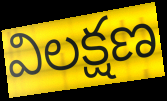
విలక్షణ